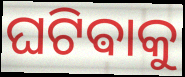
ଘଟିଵାକୁ